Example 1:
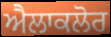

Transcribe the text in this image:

ਐਲਾਕਲੋਰ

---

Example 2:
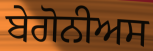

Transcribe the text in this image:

ਬੇਗੋਨੀਅਸ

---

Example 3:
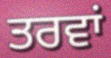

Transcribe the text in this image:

ਤਰਵਾਂ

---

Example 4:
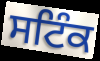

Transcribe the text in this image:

ਸਟਿੰਕ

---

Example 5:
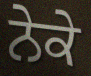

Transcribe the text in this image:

ਨੇਕੇ